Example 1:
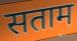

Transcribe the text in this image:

सताम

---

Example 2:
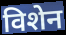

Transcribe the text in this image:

विशेन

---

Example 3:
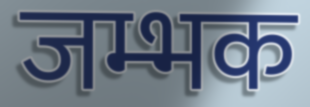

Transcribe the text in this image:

जम्भक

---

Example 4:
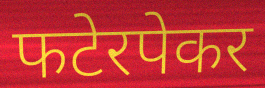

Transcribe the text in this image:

फटेरपेकर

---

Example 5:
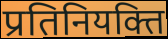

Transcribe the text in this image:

प्रतिनियक्ति